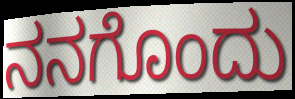
ನನಗೊಂದು